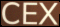
CEX